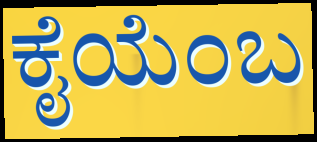
ಕೈಯೆಂಬ